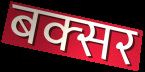
बक्‍सर